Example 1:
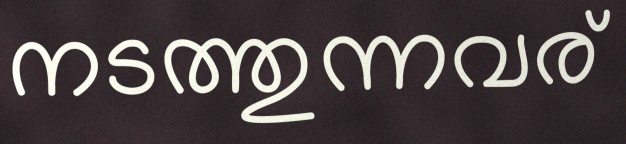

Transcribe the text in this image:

നടത്തുന്നവര്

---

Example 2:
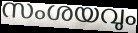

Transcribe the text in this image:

സംശയവും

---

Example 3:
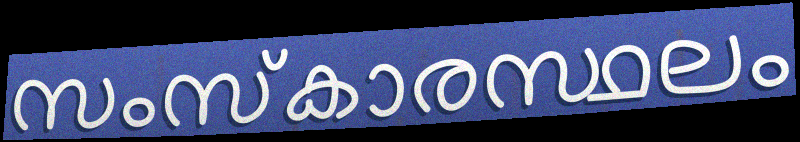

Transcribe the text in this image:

സംസ്കാരസ്ഥലം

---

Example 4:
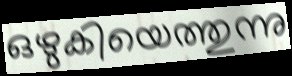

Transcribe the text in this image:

ഒഴുകിയെത്തുന്നു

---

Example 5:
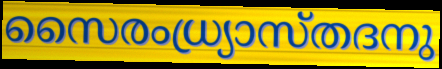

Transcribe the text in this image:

സൈരംധ്ര്യാസ്തദനു